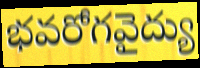
భవరోగవైద్యు